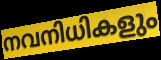
നവനിധികളും